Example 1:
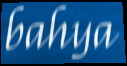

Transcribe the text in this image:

bahya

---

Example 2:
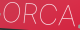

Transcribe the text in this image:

ORCA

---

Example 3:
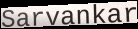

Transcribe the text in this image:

Sarvankar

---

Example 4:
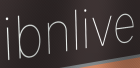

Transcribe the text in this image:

ibnlive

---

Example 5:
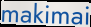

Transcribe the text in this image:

makimai